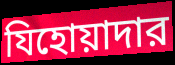
যিহোয়াদার